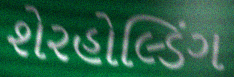
શેરહોલ્ડિંગ